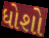
ધોશો